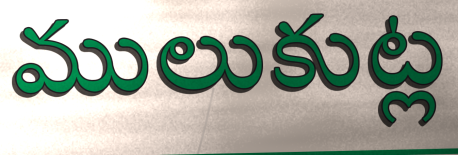
ములుకుట్ల